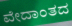
ವೇದಾಂತದ